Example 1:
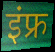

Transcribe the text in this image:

इंफ्र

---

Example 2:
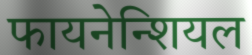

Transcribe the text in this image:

फायनेन्शियल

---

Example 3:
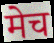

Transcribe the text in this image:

मेच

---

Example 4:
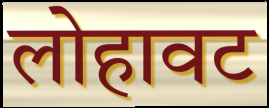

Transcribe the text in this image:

लोहावट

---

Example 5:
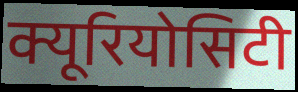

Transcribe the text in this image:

क्यूरियोसिटी